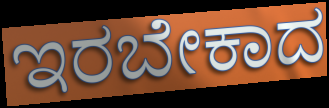
ಇರಬೇಕಾದ